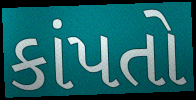
કાંપતો